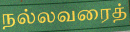
நல்லவரைத்